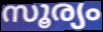
സൂര്യം